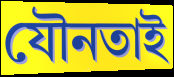
যৌনতাই